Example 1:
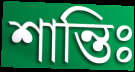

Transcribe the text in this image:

শান্তিঃ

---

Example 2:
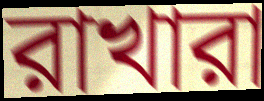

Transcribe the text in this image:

রাখারা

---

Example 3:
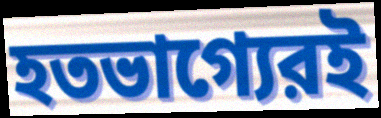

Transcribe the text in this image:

হতভাগ্যেরই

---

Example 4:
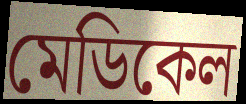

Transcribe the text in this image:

মেডিকেল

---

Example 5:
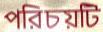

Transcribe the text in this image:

পরিচয়টি